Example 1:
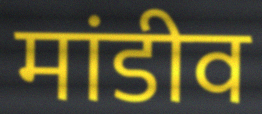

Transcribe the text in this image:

मांडीव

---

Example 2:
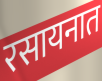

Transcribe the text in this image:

रसायनात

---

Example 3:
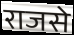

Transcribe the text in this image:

राजसे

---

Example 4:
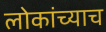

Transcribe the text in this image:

लोकांच्याच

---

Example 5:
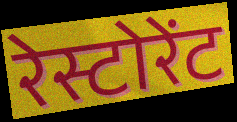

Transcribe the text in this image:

रेस्टोरेंट